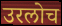
उरलोच